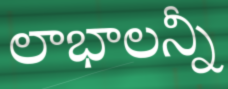
లాభాలన్నీ